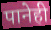
पानेही